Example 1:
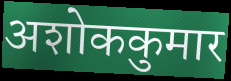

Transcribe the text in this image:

अशोककुमार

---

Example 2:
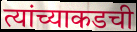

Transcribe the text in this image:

त्यांच्याकडची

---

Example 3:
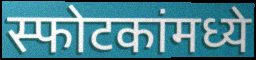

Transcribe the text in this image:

स्फोटकांमध्ये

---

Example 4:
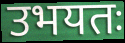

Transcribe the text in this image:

उभयतः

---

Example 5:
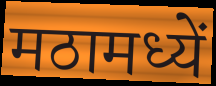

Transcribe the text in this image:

मठामध्यें